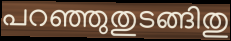
പറഞ്ഞുതുടങ്ങിതു